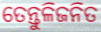
ତେନ୍ତୁଳିଜନିତ